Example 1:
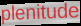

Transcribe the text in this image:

plenitude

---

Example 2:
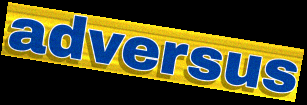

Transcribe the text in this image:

adversus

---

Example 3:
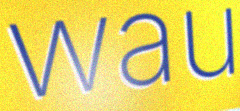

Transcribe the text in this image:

wau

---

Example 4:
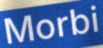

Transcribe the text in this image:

Morbi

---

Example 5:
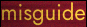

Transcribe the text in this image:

misguide